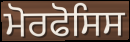
ਮੋਰਫੋਸਿਸ